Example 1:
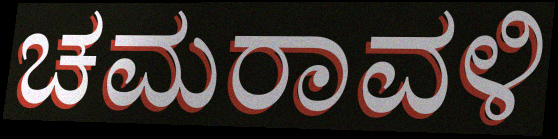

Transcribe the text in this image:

ಚಮರಾವಳಿ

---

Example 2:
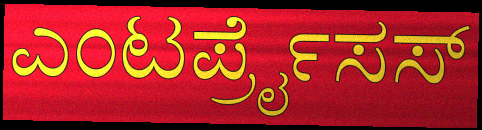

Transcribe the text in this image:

ಎಂಟರ್ಪ್ರೈಸಸ್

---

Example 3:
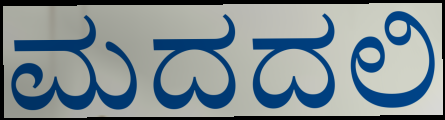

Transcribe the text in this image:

ಮದದಲಿ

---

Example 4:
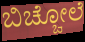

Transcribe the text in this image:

ಬಿಚ್ಚೋಲೆ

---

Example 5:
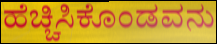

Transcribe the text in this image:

ಹೆಚ್ಚಿಸಿಕೊಂಡವನು